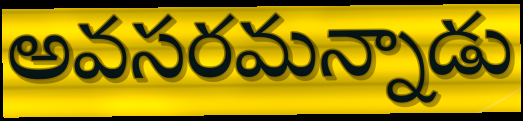
అవసరమన్నాడు